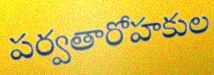
పర్వతారోహకుల